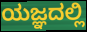
ಯಜ್ಞದಲ್ಲಿ